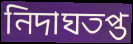
নিদাঘতপ্ত